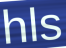
hls